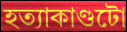
হত্যাকাণ্ডটো